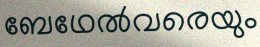
ബേഥേൽവരെയും